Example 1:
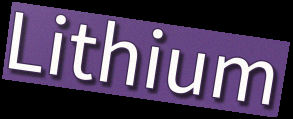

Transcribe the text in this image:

Lithium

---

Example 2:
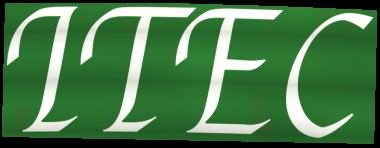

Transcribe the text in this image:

ITEC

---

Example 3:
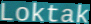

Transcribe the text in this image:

Loktak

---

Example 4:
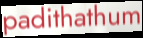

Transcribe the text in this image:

padithathum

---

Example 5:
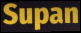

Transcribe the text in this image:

Supan